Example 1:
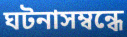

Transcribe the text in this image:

ঘটনাসম্বন্ধে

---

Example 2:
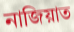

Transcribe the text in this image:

নাজিয়াত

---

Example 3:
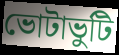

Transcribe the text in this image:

ভোটাভুটি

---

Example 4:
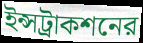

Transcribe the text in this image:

ইন্সট্রাকশনের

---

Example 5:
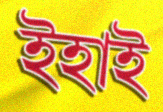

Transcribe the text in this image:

ইহাই